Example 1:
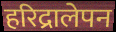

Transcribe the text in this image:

हरिद्रालेपन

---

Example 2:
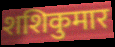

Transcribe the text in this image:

शशिकुमार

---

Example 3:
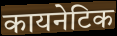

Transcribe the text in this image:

कायनेटिक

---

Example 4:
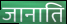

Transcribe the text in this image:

जानाति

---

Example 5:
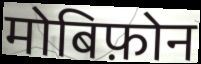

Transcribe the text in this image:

मोबिफ़ोन